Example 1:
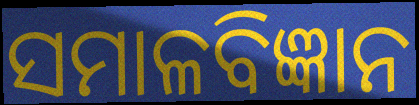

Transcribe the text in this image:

ସମାଳବିଜ୍ଞାନ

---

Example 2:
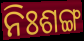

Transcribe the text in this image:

ନିଃଶଙ୍ଗ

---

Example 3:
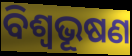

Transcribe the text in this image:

ବିଶ୍ୱଭୂଷଣ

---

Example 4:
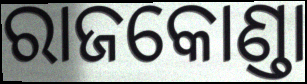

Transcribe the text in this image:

ରାଜକୋଣ୍ଡା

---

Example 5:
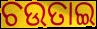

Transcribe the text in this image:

ଚଉତାଇ